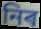
নিৰ